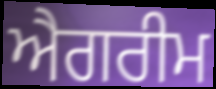
ਐਗਰੀਮ